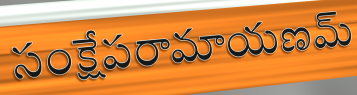
సంక్షేపరామాయణమ్